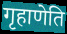
गृहाणेति